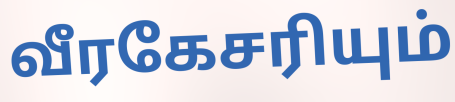
வீரகேசரியும்